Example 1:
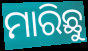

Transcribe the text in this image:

ମାରିଛୁ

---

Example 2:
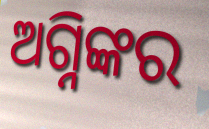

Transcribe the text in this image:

ଅଗ୍ନିଙ୍କର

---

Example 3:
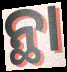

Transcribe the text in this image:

ନ୍ଥା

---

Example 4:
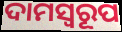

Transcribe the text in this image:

ଦାମସ୍ୱରୂପ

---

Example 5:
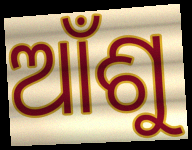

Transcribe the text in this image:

ଆଁଶୁ